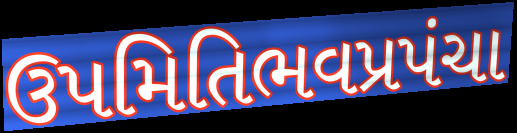
ઉપમિતિભવપ્રપંચા